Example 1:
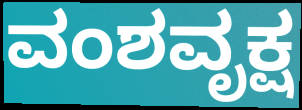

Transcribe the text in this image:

ವಂಶವೃಕ್ಷ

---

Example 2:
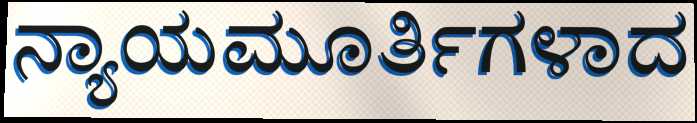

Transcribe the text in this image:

ನ್ಯಾಯಮೂರ್ತಿಗಳಾದ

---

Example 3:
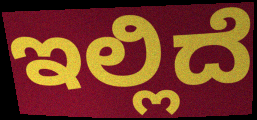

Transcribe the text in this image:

ಇಲ್ಲಿದೆ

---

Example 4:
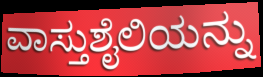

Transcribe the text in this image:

ವಾಸ್ತುಶೈಲಿಯನ್ನು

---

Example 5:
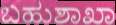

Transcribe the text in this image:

ಬಹುಶಾಖಾ